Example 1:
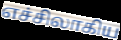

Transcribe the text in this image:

எச்சிலாகிய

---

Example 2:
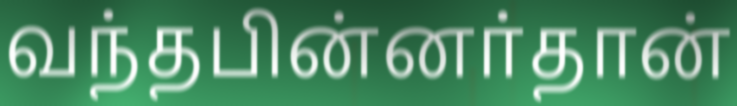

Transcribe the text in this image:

வந்தபின்னர்தான்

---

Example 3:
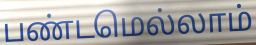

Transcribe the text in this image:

பண்டமெல்லாம்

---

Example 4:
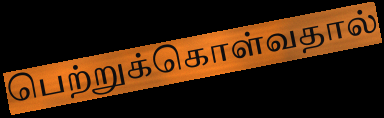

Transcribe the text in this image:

பெற்றுக்கொள்வதால்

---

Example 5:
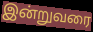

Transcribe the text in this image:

இன்றுவரை